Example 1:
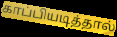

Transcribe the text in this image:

காப்பியடித்தால்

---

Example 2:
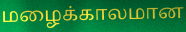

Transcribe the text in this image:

மழைக்காலமான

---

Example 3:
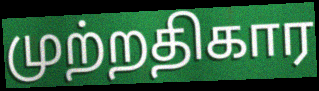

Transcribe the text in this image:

முற்றதிகார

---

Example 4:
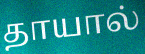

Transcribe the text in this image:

தாயால்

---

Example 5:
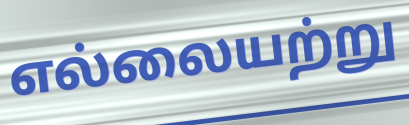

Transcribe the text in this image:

எல்லையற்று